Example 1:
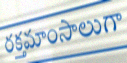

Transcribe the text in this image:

రక్తమాంసాలుగా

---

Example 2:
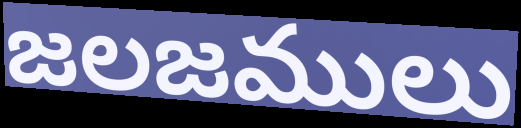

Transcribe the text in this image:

జలజములు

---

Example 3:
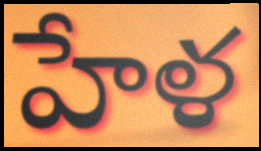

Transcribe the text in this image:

హేళ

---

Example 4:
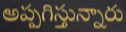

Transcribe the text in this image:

అప్పగిస్తున్నారు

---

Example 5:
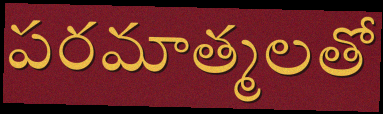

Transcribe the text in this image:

పరమాత్మలతో